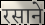
रसाने